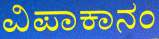
ವಿಪಾಕಾನಂ